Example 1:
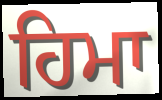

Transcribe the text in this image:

ਹਿਮਾ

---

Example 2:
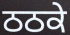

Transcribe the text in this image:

ਠਠਕੇ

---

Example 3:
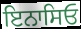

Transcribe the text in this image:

ਇਨਾਸਿਓ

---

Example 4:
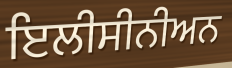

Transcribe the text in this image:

ਇਲੀਸੀਨੀਅਨ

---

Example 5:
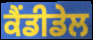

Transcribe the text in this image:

ਕੈਂਡੀਡੇਲ